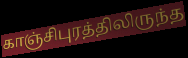
காஞ்சிபுரத்திலிருந்த